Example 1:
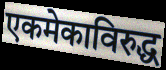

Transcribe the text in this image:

एकमेकाविरुद्ध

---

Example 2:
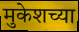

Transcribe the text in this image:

मुकेशच्या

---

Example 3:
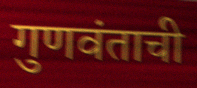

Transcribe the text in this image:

गुणवंताची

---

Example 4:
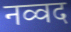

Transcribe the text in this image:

नव्वद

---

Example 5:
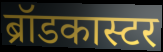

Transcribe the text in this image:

ब्रॉडकास्टर